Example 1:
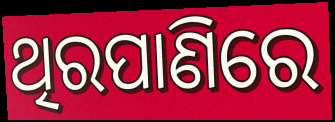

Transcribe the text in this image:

ଥିରପାଣିରେ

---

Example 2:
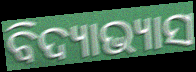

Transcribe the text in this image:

ବିଦ୍ୟାଭ୍ୟାସ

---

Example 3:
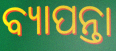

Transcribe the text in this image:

ବ୍ୟାପନ୍ତା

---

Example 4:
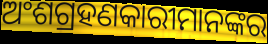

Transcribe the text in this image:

ଅଂଶଗ୍ରହଣକାରୀମାନଙ୍କର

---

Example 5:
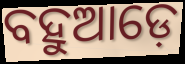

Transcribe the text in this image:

ବହୁଆଡ଼େ